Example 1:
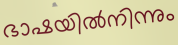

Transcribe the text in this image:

ഭാഷയിൽനിന്നും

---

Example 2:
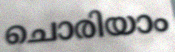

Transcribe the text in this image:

ചൊരിയാം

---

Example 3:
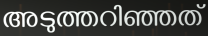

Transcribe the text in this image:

അടുത്തറിഞ്ഞത്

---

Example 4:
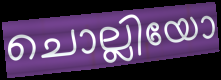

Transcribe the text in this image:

ചൊല്ലിയോ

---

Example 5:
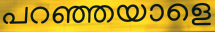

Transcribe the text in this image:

പറഞ്ഞയാളെ